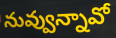
నువ్వున్నావో